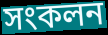
সংকলন